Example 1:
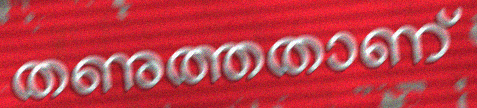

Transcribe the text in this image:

തണുത്തതാണ്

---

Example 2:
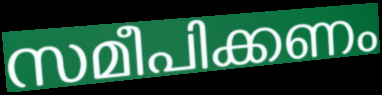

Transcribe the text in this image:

സമീപിക്കണം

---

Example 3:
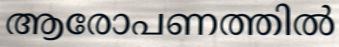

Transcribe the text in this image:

ആരോപണത്തിൽ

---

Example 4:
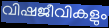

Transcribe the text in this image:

വിഷജീവികളും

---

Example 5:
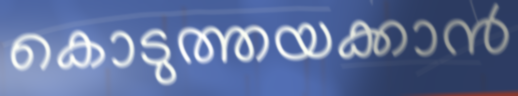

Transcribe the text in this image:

കൊടുത്തയക്കാൻ